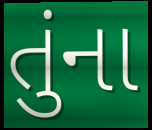
તુંના